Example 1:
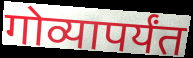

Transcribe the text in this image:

गोव्यापर्यंत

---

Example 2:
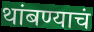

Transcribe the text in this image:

थांबण्याचं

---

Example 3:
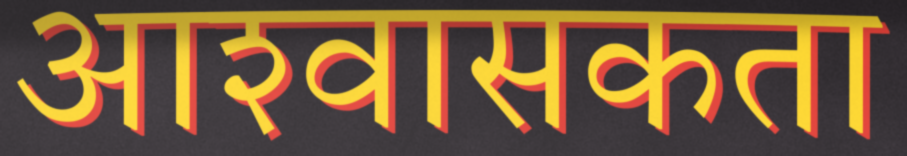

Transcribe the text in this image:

आश्वासकता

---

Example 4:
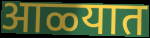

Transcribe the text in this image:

आळ्यात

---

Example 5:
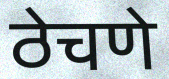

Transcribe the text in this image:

ठेचणे